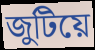
জুটিয়ে